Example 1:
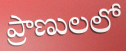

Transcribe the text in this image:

ప్రాణులలో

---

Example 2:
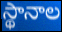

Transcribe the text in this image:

స్థానాల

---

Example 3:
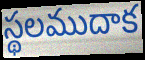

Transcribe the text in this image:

స్థలముదాక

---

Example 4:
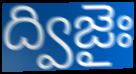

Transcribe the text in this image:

ద్విజైః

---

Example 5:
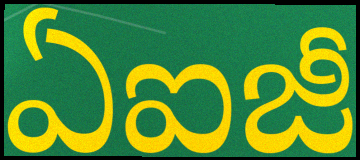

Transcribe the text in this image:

ఏఐజీ